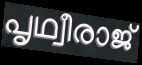
പൃഥ്വീരാജ്